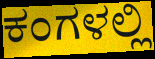
ಕಂಗಳಲ್ಲಿ